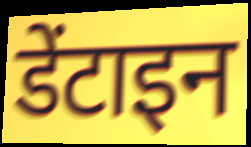
डेंटाइन